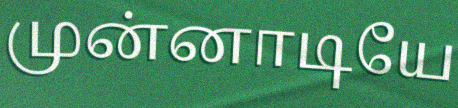
முன்னாடியே